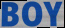
BOY